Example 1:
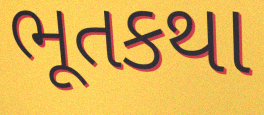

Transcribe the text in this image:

ભૂતકથા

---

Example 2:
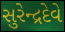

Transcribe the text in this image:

સુરેન્દ્રદેવે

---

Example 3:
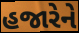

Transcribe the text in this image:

હજારેને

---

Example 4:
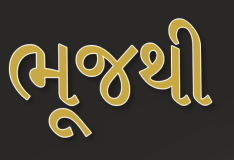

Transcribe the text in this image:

ભૂજથી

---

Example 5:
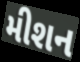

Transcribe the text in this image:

મીશન